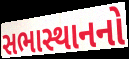
સભાસ્થાનનો